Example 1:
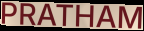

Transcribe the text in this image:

PRATHAM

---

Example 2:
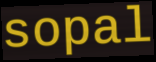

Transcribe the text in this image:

sopal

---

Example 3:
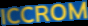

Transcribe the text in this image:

ICCROM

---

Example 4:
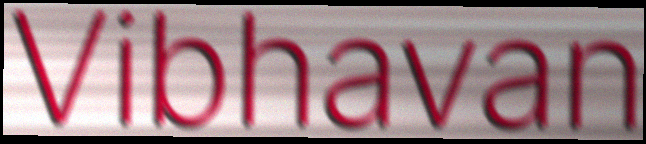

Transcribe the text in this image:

Vibhavan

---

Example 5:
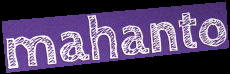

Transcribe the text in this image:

mahanto